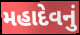
મહાદેવનું